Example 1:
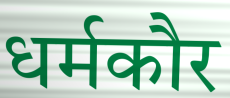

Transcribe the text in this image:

धर्मकौर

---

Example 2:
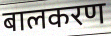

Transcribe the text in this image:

बालकरण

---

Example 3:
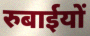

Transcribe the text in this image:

रुबाईयों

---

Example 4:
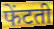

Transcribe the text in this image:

फेंटती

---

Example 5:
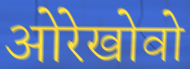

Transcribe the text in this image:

ओरेखोवो